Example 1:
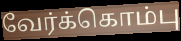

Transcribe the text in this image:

வேர்க்கொம்பு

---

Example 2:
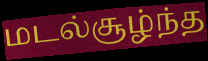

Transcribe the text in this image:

மடல்சூழ்ந்த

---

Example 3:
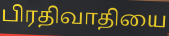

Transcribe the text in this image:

பிரதிவாதியை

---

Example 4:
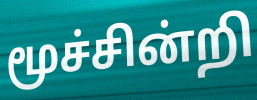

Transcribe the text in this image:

மூச்சின்றி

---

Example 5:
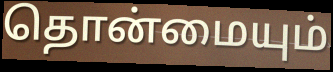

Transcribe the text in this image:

தொன்மையும்